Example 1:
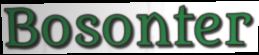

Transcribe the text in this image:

Bosonter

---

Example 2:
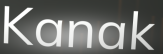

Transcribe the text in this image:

Kanak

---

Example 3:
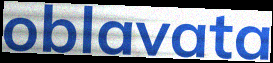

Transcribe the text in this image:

oblavata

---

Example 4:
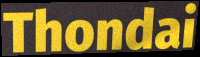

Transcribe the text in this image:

Thondai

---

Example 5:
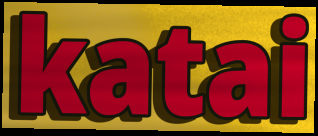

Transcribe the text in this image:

katai